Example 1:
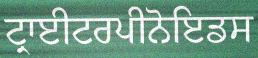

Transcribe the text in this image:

ਟ੍ਰਾਈਟਰਪੀਨੋਇਡਸ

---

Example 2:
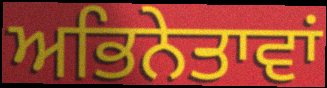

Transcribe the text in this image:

ਅਭਿਨੇਤਾਵਾਂ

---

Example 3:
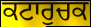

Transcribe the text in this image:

ਕਟਾਰੁਚਕ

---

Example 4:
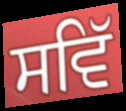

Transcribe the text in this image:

ਸਵਿੱ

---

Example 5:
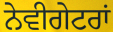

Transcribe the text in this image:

ਨੇਵੀਗੇਟਰਾਂ